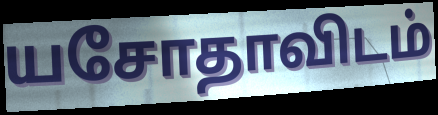
யசோதாவிடம்